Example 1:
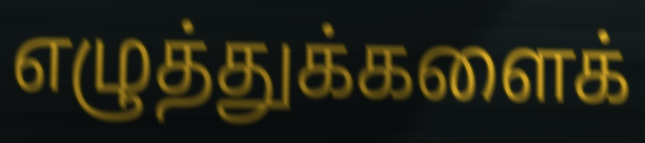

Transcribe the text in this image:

எழுத்துக்களைக்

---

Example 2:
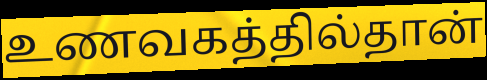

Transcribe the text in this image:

உணவகத்தில்தான்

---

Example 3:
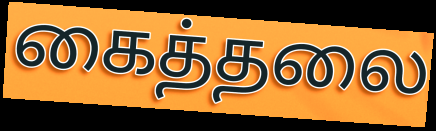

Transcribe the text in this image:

கைத்தலை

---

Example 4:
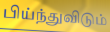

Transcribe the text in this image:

பிய்ந்துவிடும்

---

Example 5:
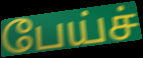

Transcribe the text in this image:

பேய்ச்